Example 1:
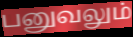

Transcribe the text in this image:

பனுவலும்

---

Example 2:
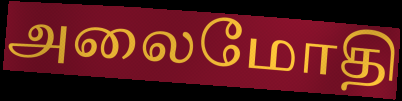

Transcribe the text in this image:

அலைமோதி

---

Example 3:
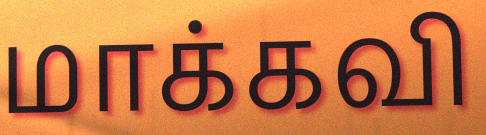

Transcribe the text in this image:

மாக்கவி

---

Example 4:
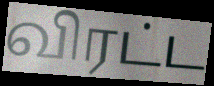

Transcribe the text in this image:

விரட்ட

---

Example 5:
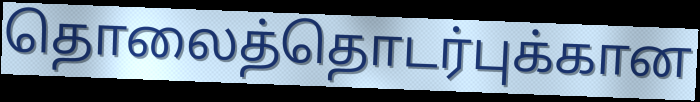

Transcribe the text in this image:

தொலைத்தொடர்புக்கான